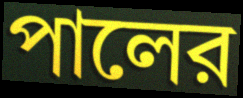
পালের